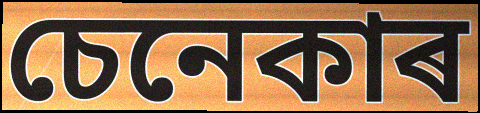
চেনেকাৰ